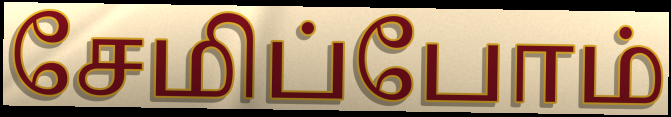
சேமிப்போம்